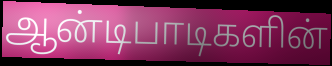
ஆன்டிபாடிகளின்